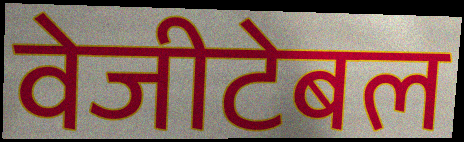
वेजीटेबल